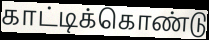
காட்டிக்கொண்டு